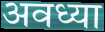
अवध्या